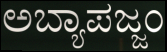
ಅಬ್ಯಾಪಜ್ಜಂ